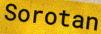
Sorotan